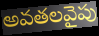
అవతలవైపు